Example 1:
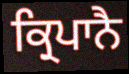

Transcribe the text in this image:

ਕ੍ਰਿਪਾਨੈ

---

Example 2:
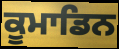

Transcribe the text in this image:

ਕੂਮਾਡਿਨ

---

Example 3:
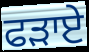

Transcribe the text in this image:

ਫੜਾਏ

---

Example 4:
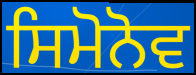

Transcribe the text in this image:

ਸਿਮੋਨੋਵ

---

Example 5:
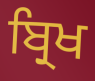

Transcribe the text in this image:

ਬ੍ਰਿਖ